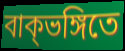
বাক্ভঙ্গিতে